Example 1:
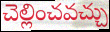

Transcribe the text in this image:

చెల్లించవచ్చు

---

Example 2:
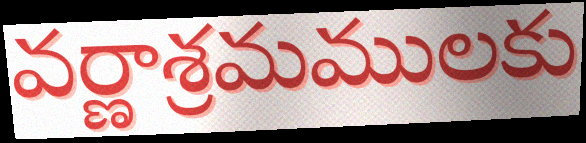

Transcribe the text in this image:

వర్ణాశ్రమములకు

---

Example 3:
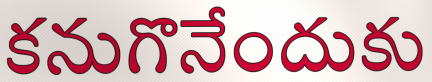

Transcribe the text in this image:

కనుగొనేందుకు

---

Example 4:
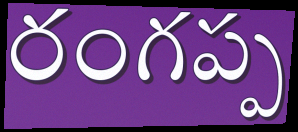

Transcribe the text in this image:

రంగప్ప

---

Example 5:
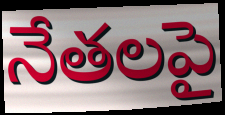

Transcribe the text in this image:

నేతలపై